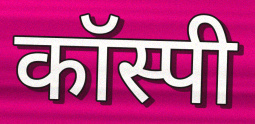
कॉस्पी